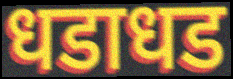
धडाधड